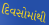
દિવસોમાંથી